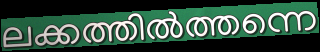
ലക്കത്തിൽത്തന്നെ